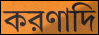
করণাদি